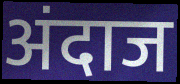
अंदाज